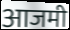
आजमी